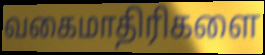
வகைமாதிரிகளை